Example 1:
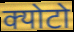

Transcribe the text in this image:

क्‍योटो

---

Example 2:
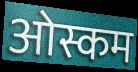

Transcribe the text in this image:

ओस्कम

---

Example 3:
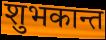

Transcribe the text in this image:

शुभकान्त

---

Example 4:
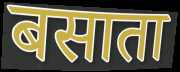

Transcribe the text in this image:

बसाता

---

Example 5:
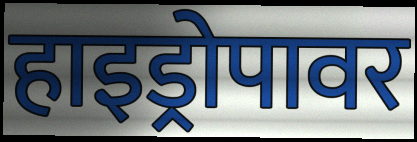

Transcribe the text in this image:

हाइड्रोपावर